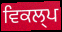
ਵਿਕਲ੍ਪ